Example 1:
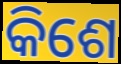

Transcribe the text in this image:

କିଶେ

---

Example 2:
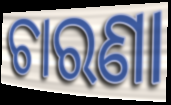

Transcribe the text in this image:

ଚାରଣା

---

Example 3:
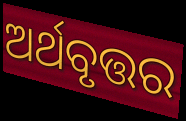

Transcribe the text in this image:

ଅର୍ଥବୃତ୍ତର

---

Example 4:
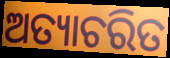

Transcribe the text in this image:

ଅତ୍ୟାଚରିତ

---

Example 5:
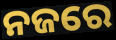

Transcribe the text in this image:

ନଜରେ